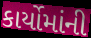
કાર્યોમાંની